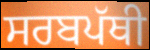
ਸਰਬਪੱਥੀ